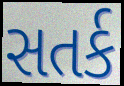
સતર્ક